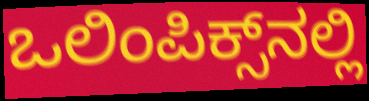
ಒಲಿಂಪಿಕ್ಸ್‌ನಲ್ಲಿ